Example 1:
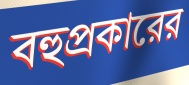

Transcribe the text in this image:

বহুপ্রকারের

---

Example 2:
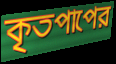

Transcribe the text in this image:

কৃতপাপের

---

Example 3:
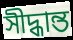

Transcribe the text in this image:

সীদ্ধান্ত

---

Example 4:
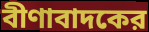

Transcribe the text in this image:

বীণাবাদকের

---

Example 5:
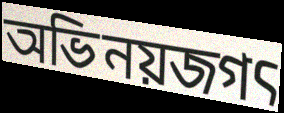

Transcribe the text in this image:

অভিনয়জগৎ